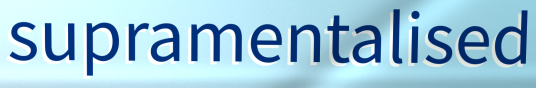
supramentalised